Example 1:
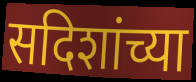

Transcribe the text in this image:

सदिशांच्या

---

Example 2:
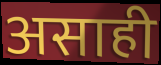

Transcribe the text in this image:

असाही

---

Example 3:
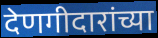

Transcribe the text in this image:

देणगीदारांच्या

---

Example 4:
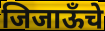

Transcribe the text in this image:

जिजाऊँचे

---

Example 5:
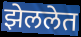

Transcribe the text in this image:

झेललेत